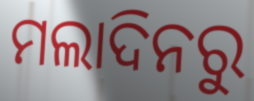
ମଲାଦିନରୁ